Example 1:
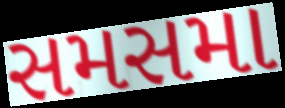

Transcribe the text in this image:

સમસમા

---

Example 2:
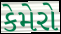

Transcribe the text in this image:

કેમેરો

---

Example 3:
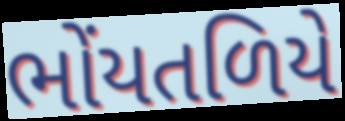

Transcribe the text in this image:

ભોંયતળિયે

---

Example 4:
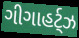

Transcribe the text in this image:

ગીગાહર્ટ્ઝ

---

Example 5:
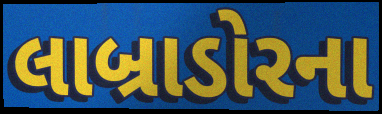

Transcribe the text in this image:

લાબ્રાડોરના